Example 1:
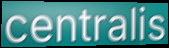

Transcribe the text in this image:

centralis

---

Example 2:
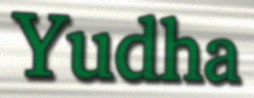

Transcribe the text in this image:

Yudha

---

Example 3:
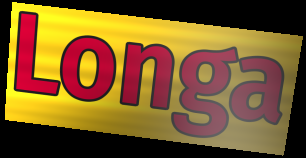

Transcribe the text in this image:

Longa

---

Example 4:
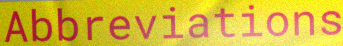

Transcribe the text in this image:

Abbreviations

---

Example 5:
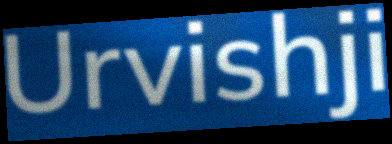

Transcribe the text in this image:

Urvishji